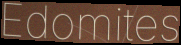
Edomites